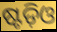
ଷ୍ଟଡ଼ିଓ